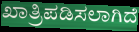
ಖಾತ್ರಿಪಡಿಸಲಾಗಿದೆ